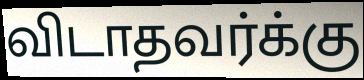
விடாதவர்க்கு